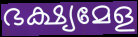
ഭക്ഷ്യമേള